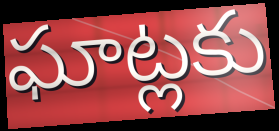
ఘాట్లకు